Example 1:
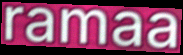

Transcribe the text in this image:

ramaa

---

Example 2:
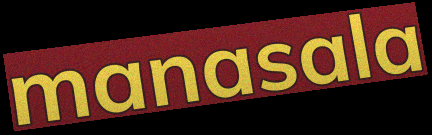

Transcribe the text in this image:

manasala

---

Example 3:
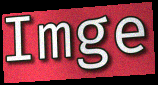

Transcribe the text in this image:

Imge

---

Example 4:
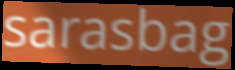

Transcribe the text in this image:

sarasbag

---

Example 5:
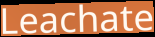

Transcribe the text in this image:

Leachate